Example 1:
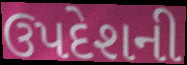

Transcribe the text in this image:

ઉપદેશની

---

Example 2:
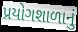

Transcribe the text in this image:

પ્રયોગશાળાનું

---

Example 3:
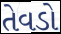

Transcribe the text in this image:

તેવડો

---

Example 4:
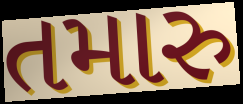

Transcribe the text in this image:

તમારુ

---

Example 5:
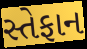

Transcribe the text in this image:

સ્તેફાન